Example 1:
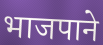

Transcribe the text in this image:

भाजपाने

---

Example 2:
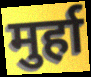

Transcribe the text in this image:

मुर्हा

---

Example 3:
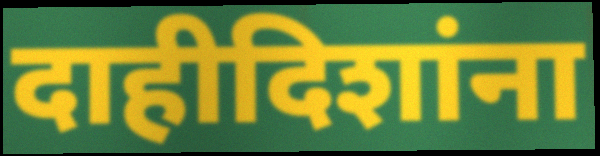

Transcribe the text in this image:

दाहीदिशांना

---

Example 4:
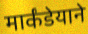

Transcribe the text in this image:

मार्कंडेयाने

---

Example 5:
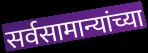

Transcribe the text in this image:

सर्वसामान्यांच्या